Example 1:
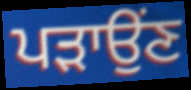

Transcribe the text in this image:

ਪੜਾਉਂਣ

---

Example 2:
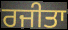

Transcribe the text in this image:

ਰਜੀਤਾ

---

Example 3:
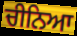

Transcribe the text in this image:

ਚੀਨਿਆ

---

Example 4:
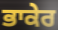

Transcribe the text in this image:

ਭਾਕੇਰ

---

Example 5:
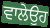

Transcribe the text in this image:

ਵਾਲੇਉਹ